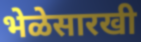
भेळेसारखी